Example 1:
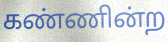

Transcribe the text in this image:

கண்ணின்ற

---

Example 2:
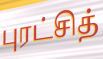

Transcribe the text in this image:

புரட்சித்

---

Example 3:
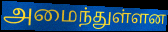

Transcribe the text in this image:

அமைந்துள்ளன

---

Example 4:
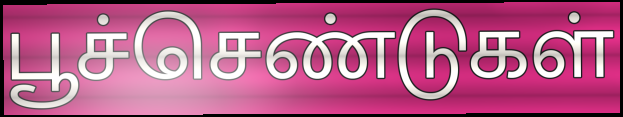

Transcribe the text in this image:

பூச்செண்டுகள்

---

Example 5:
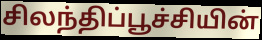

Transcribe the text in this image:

சிலந்திப்பூச்சியின்